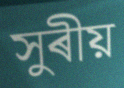
সুৰীয়